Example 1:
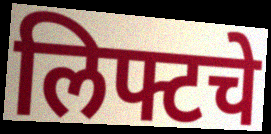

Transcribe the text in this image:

लिफ्टचे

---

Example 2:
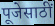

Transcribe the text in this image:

पूजेसाठीं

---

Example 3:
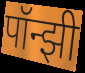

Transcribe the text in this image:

पॉन्झी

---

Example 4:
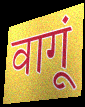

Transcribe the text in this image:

वागूं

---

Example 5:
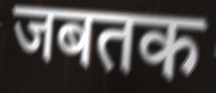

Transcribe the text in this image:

जबतक